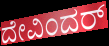
ದೇವಿಂದರ್